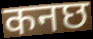
कनछ